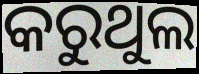
କରୁଥୁଲ